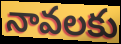
నావలకు